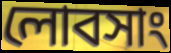
লোবসাং